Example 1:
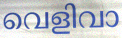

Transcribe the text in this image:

വെളിവാ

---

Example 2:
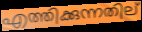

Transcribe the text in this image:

എത്തിക്കുന്നതില്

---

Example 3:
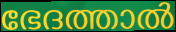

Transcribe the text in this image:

ഭേദത്താൽ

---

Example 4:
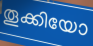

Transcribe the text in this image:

തൂക്കിയോ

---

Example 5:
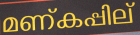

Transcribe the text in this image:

മണ്കപ്പില്